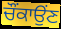
ਚੌਂਕਾਉਂਣ